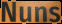
Nuns